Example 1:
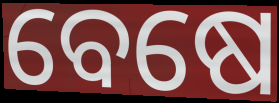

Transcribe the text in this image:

ବେଷେ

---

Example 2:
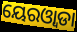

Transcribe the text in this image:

ୟେରଓ୍ୱାଡା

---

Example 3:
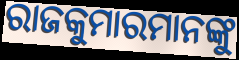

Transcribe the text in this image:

ରାଜକୁମାରମାନଙ୍କୁ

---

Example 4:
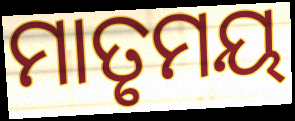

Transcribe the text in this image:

ମାତୃମୟ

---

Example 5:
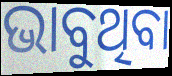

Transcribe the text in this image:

ଭାବୁଥିବା